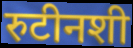
रुटीनशी